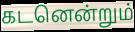
கடனென்றும்